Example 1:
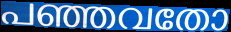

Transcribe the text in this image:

പഞ്ഞവതോ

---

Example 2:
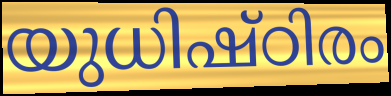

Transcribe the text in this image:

യുധിഷ്ഠിരം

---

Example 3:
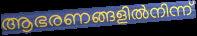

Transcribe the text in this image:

ആഭരണങ്ങളിൽനിന്ന്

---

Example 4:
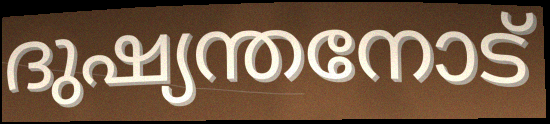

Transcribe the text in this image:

ദുഷ്യന്തനോട്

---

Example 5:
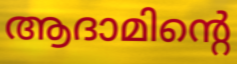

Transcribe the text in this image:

ആദാമിന്റെ